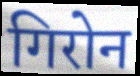
गिरोन